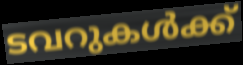
ടവറുകൾക്ക്